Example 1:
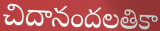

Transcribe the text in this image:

చిదానందలతికా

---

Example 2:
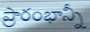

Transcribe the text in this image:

ప్రారంభాన్నీ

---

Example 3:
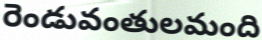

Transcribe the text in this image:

రెండువంతులమంది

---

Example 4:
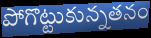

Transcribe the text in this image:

పోగొట్టుకున్నతనం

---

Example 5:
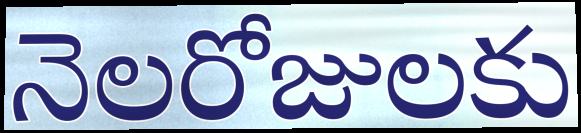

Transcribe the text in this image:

నెలరోజులకు